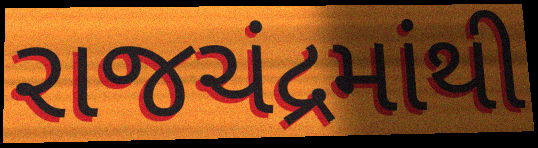
રાજચંદ્રમાંથી